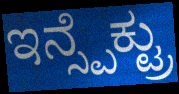
ಇನ್ಸ್ಪೆಕ್ಟ್ರು